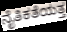
ನೈತಿಕತೆಯತ್ತ